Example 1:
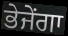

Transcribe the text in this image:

ਭੇਜੇਂਗਾ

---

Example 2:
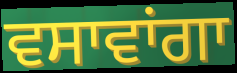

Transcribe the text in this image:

ਵਸਾਵਾਂਗਾ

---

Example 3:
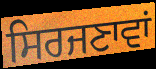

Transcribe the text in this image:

ਸਿਰਜਣਾਵਾਂ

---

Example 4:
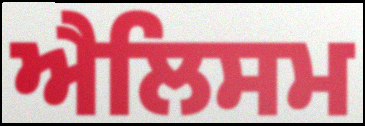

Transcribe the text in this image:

ਐਲਿਸਮ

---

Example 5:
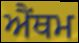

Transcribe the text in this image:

ਐਂਥਮ